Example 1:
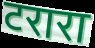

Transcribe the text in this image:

टरारा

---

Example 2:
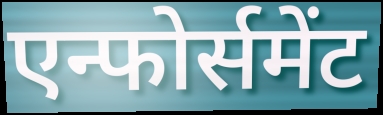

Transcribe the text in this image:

एन्फोर्समेंट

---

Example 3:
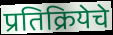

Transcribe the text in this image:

प्रतिक्रियेचे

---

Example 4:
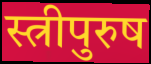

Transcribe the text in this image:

स्त्रीपुरुष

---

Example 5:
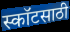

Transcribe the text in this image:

स्कॉटसाठी